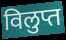
विलुप्त